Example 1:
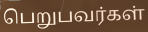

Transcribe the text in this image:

பெறுபவர்கள்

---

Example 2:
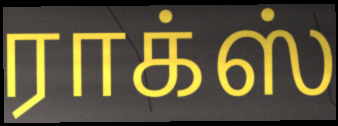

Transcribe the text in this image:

ராக்ஸ்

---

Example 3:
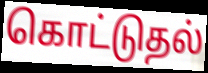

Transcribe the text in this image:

கொட்டுதல்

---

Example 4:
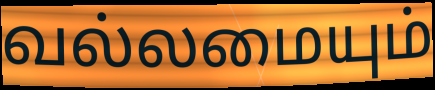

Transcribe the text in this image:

வல்லமையும்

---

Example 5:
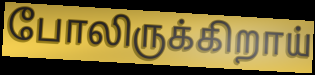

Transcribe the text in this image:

போலிருக்கிறாய்